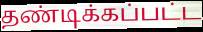
தண்டிக்கப்பட்ட